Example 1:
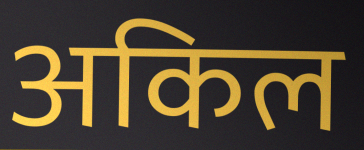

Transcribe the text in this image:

अकिल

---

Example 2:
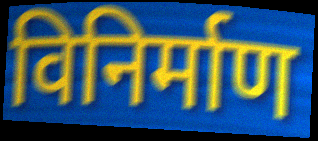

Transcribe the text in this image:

विनिर्माण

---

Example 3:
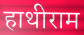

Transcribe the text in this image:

हाथीराम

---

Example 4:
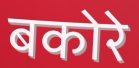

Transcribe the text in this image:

बकोरे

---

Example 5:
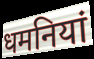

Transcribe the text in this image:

धमनियां